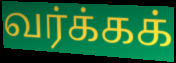
வர்க்கக்